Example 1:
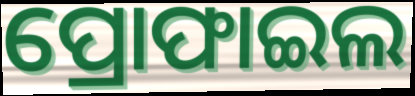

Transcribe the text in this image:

ପ୍ରୋଫାଇଲ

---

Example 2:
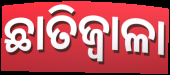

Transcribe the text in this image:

ଛାତିଜ୍ୱାଳା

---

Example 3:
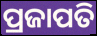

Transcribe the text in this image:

ପ୍ରଜାପତି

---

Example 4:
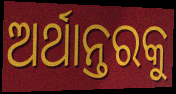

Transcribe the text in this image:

ଅର୍ଥାନ୍ତରକୁ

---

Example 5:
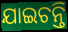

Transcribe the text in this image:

ଯାଇଚନ୍ତି